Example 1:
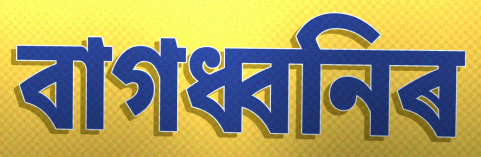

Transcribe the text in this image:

বাগধ্বনিৰ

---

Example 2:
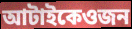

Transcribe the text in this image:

আটাইকেওজন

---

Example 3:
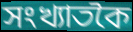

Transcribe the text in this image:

সংখ্যাতকৈ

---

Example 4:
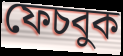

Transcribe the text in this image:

ফেচবুক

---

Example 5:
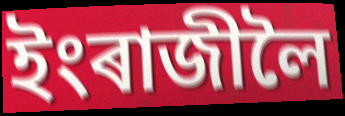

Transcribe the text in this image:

ইংৰাজীলৈ